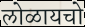
लोळायचो